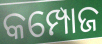
କମ୍ପୋଜ